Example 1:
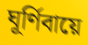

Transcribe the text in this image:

ঘূর্ণিবায়ে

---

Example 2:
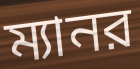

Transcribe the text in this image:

ম্যানর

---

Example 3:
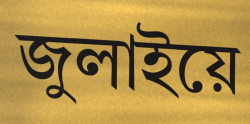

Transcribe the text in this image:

জুলাইয়ে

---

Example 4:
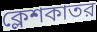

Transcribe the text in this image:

ক্লেশকাতর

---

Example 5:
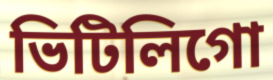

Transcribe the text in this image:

ভিটিলিগো